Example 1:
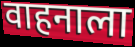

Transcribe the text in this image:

वाहनाला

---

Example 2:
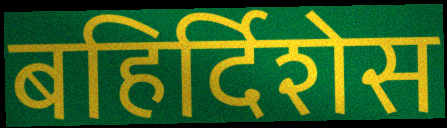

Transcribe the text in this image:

बहिर्दिशेस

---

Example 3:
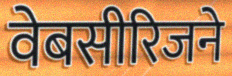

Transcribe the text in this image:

वेबसीरिजने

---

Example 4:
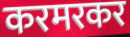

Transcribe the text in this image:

करमरकर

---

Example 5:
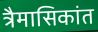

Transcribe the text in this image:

त्रैमासिकांत